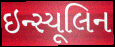
ઇન્સ્યૂલિન